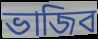
ভাজিব